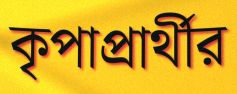
কৃপাপ্রার্থীর